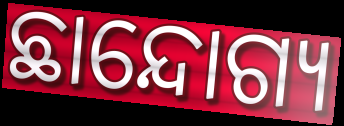
ଛାନ୍ଦୋଗ୍ୟ